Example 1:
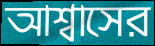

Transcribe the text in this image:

আশ্বাসের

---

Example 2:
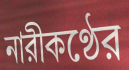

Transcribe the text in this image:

নারীকণ্ঠের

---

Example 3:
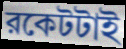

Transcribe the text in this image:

রকেটটাই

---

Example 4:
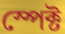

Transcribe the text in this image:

স্পেক্ট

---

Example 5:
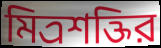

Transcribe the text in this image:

মিত্রশক্তির